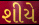
શીયે